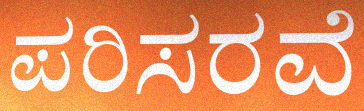
ಪರಿಸರವೆ